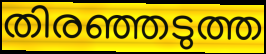
തിരഞ്ഞടുത്ത